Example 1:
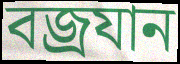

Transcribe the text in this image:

বজ্রযান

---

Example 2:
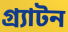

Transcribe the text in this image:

গ্র্যাটন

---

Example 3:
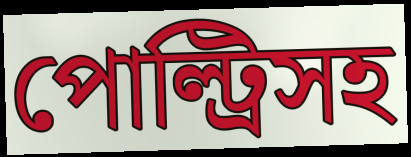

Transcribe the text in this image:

পোল্ট্রিসহ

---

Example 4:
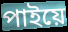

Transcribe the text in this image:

পাইয়ে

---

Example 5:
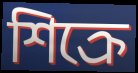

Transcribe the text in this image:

শিক্রে